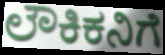
ಲೌಕಿಕನಿಗೆ